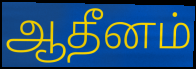
ஆதீனம்